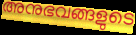
അനുഭവങ്ങളുടെ